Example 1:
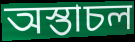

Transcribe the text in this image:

অস্তাচল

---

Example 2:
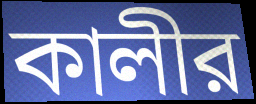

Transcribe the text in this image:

কালীর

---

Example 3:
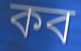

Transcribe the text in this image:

কব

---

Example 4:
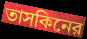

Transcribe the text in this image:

তাসকিনের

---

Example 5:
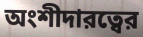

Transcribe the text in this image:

অংশীদারত্বের